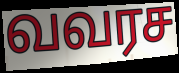
வவரச